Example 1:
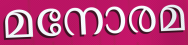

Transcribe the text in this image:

മനോരമ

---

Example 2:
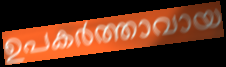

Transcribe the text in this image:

ഉപകർത്താവായ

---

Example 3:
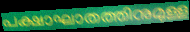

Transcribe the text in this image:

പക്ഷാഘാതത്തിനുമുള്ള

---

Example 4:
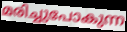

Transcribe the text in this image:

മരിച്ചുപോകുന്ന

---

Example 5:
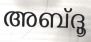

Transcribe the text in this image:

അബ്ദൂ